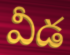
వీడ